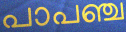
പാപഞ്ച